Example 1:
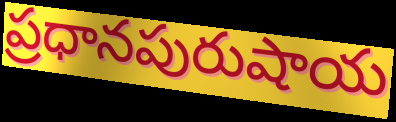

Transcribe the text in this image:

ప్రధానపురుషాయ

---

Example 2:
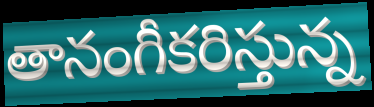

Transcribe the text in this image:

తానంగీకరిస్తున్న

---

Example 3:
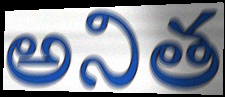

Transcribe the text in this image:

అనిత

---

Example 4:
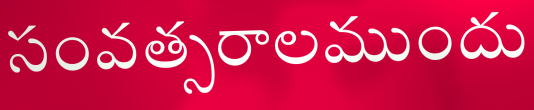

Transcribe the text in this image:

సంవత్సరాలముందు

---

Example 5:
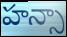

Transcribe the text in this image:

హన్సా